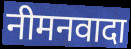
नीमनवादा